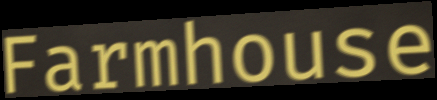
Farmhouse